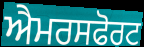
ਐਮਰਸਫੋਰਟ